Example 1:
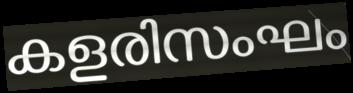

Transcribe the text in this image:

കളരിസംഘം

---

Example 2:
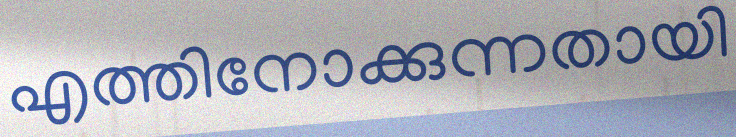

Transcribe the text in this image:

എത്തിനോക്കുന്നതായി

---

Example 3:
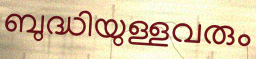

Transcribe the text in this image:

ബുദ്ധിയുള്ളവരും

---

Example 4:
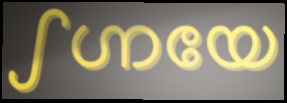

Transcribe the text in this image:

ഽഗ്നയേ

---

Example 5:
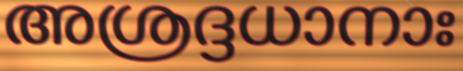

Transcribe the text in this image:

അശ്രദ്ദധാനാഃ